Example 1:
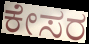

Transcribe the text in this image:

ಕೇಸರ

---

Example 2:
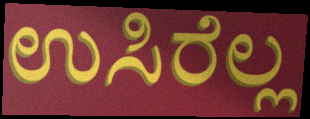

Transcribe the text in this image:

ಉಸಿರೆಲ್ಲ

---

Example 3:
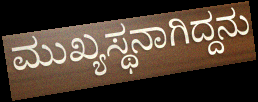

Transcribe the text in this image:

ಮುಖ್ಯಸ್ಥನಾಗಿದ್ದನು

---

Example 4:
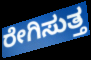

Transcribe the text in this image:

ರೇಗಿಸುತ್ತ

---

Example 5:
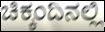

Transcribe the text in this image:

ಚಿಕ್ಕಂದಿನಲ್ಲಿ